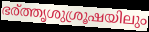
ഭര്ത്തൃശുശ്രൂഷയിലും